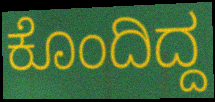
ಕೊಂದಿದ್ದ